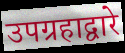
उपग्रहाद्वारे